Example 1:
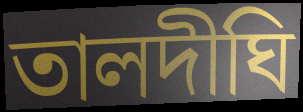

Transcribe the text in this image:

তালদীঘি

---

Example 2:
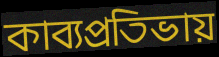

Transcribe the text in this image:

কাব্যপ্রতিভায়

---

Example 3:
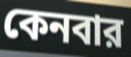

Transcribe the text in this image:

কেনবার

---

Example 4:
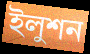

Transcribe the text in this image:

ইলুশন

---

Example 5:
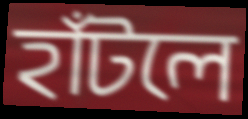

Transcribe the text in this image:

হাঁটলে